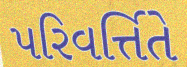
પરિવર્ત્તિતે